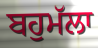
ਬਹੁਮੱਲਾ